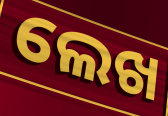
ଲେଖ